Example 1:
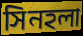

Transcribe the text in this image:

সিনহলা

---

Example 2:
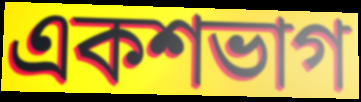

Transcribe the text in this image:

একশভাগ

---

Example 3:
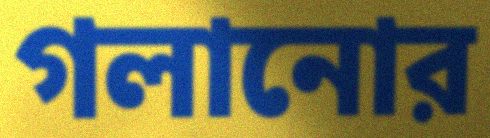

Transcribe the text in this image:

গলানোর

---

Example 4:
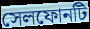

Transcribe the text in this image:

সেলফোনটি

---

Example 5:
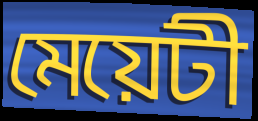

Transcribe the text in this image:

মেয়েটী